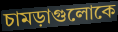
চামড়াগুলোকে